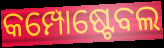
କମ୍ପୋଷ୍ଟେବଲ